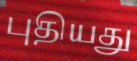
புதியது